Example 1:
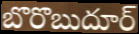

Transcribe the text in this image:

బొరొబుదూర్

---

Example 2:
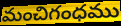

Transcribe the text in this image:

మంచిగంధము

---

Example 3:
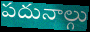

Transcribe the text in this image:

పదునాల్గు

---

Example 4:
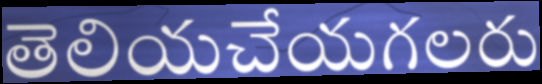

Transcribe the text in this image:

తెలియచేయగలరు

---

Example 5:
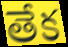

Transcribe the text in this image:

తేక